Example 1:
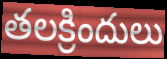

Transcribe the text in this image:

తలక్రిందులు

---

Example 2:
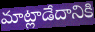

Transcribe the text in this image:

మాట్లాడేదానికి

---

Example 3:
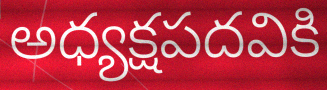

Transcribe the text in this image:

అధ్యక్షపదవికి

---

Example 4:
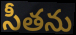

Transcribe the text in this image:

సీతను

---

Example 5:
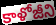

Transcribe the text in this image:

కాళోజీని